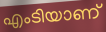
എംടിയാണ്